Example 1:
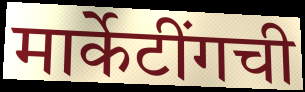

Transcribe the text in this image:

मार्केटींगची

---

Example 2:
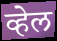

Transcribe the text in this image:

व्हेल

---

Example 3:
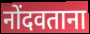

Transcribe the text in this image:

नोंदवताना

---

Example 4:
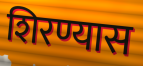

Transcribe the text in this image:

शिरण्यास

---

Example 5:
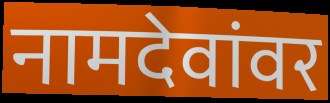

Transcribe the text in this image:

नामदेवांवर